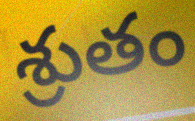
శ్రుతం